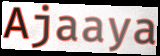
Ajaaya